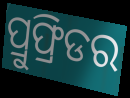
ପ୍ରୁଫ୍ରିଡର